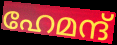
ഹേമന്ദ്